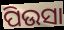
ପିଉସା